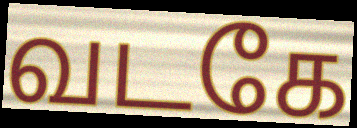
வடகே